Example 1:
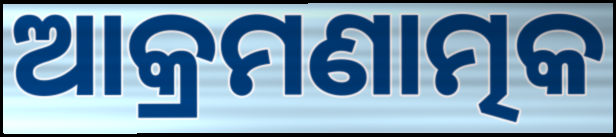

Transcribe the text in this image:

ଆକ୍ରମଣାତ୍ମକ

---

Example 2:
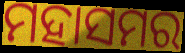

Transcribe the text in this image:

ମହାସମର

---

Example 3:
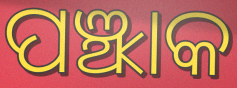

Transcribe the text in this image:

ପଞ୍ଝାକ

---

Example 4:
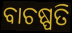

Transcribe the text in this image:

ବାଚଷ୍ପତି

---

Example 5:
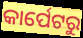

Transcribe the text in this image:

କାର୍ପେଟରୁ